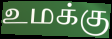
உமக்கு